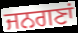
ਜਨਗਣਾਂ